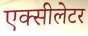
एक्सीलेटर